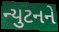
ન્યુટનને